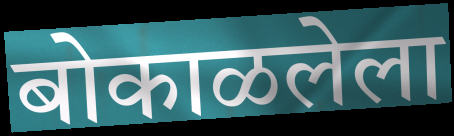
बोकाळलेला